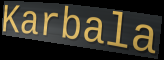
Karbala